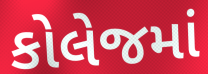
કોલેજમાં